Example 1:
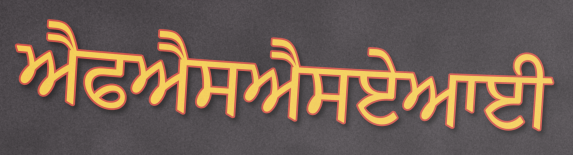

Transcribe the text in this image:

ਐਫਐਸਐਸਏਆਈ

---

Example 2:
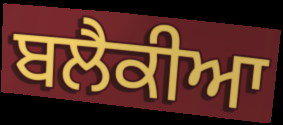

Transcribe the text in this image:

ਬਲੈਕੀਆ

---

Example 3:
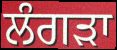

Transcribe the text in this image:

ਲੰਗੜਾ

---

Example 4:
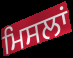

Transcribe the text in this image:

ਮਿਸਲਾਂ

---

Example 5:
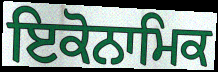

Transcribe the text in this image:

ਇਕੋਨਾਮਿਕ